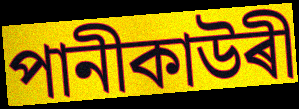
পানীকাউৰী